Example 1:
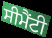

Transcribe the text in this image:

ਸੀਮੈਂਟੀ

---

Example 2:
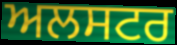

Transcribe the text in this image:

ਅਲਸਟਰ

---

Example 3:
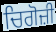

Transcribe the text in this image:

ਚਿਗੋਜ਼ੀ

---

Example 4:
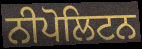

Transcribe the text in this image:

ਨੀਪੋਲਿਟਨ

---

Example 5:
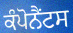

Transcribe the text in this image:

ਕੰਪੋਨੈਂਟਸ